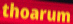
thoarum